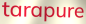
tarapure